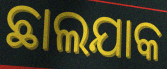
ଛାଲଯାକ